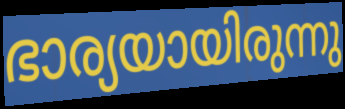
ഭാര്യയായിരുന്നു